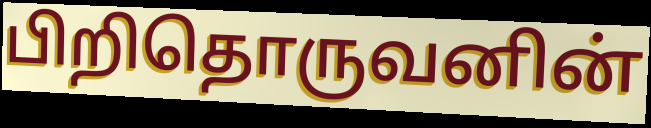
பிறிதொருவனின்